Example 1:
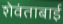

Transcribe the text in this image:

शेवंताबाई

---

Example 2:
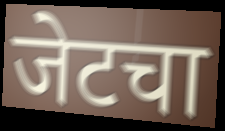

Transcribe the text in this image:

जेटचा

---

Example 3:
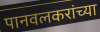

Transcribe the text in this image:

पानवलकरांच्या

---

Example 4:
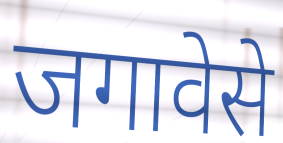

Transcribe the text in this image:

जगावेसे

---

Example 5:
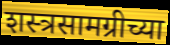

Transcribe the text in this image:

शस्त्रसामग्रीच्या